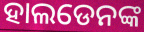
ହାଲଡେନଙ୍କ